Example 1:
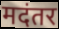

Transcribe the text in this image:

मदंतर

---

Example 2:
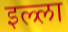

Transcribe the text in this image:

इल्ला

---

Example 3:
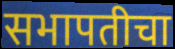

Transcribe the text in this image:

सभापतीचा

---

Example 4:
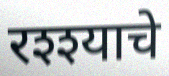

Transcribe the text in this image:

रश्श्याचे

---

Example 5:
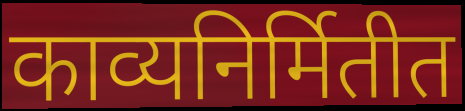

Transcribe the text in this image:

काव्यनिर्मितीत